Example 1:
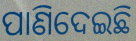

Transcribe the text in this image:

ପାଣିଦେଇଛି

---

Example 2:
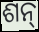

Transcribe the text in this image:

ଶନ୍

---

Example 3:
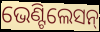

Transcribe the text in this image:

ଭେଣ୍ଟିଲେସନ୍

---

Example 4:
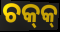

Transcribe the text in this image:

ଚକ୍‌କ୍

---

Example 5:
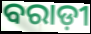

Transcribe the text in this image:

ବରାଡ଼ୀ